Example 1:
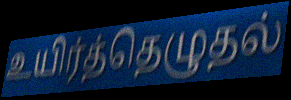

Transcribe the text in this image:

உயிர்த்தெழுதல்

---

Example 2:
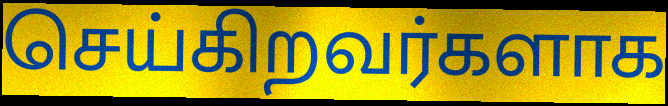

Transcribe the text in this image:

செய்கிறவர்களாக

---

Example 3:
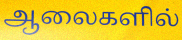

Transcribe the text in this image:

ஆலைகளில்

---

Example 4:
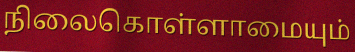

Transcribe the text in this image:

நிலைகொள்ளாமையும்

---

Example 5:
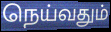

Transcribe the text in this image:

நெய்வதும்